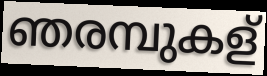
ഞരമ്പുകള്